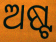
ଅଷ୍ଟ